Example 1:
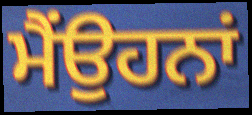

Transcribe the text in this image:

ਮੈਂਉਹਨਾਂ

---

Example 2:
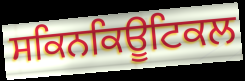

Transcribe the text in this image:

ਸਕਿਨਕਿਊਟਿਕਲ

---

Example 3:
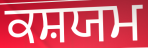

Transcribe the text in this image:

ਕਸ਼ਯਮ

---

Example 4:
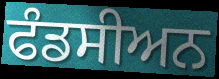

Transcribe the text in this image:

ਫੰਡਸੀਅਨ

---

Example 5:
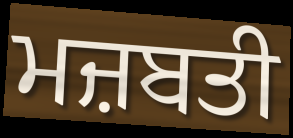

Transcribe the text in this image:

ਮਜ਼ਬਤੀ